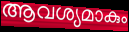
ആവശ്യമാകും